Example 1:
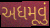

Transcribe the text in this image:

અધમૂવું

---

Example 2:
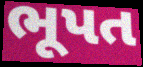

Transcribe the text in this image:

ભૂપત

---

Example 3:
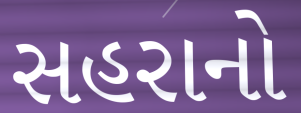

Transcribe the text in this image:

સહરાનો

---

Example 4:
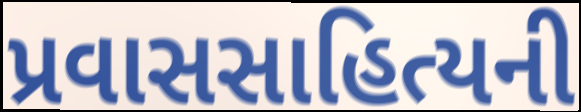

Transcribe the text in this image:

પ્રવાસસાહિત્યની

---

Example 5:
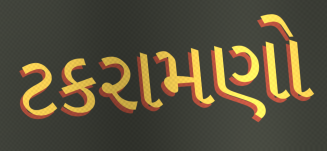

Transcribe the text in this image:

ટકરામણો